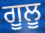
ਗੂਲੂ